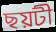
ছয়টী